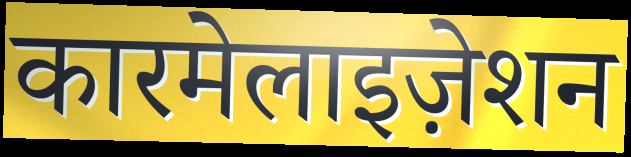
कारमेलाइज़ेशन